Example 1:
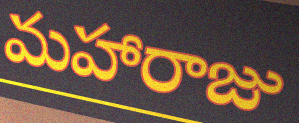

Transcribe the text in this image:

మహారాజు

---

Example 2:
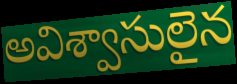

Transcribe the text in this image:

అవిశ్వాసులైన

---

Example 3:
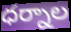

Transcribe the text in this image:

ధర్నాల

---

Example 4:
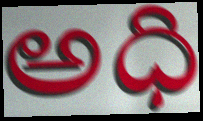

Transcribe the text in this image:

అధి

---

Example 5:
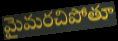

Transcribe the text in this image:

మైమరచిపోతూ